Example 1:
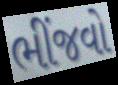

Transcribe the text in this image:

ભીંજવો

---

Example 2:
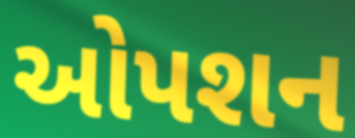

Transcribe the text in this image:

ઓપશન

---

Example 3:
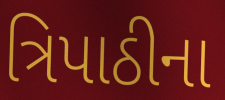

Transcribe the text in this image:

ત્રિપાઠીના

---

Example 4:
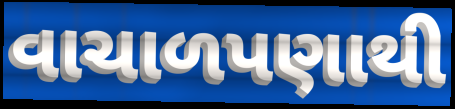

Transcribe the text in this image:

વાચાળપણાથી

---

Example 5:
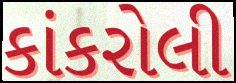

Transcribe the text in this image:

કાંકરોલી